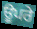
ਊਪਰੇ